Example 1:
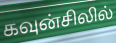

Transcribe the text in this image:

கவுன்சிலில்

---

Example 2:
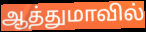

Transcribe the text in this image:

ஆத்துமாவில்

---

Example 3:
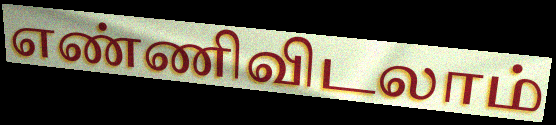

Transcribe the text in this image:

எண்ணிவிடலாம்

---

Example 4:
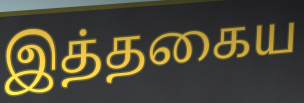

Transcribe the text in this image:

இத்தகைய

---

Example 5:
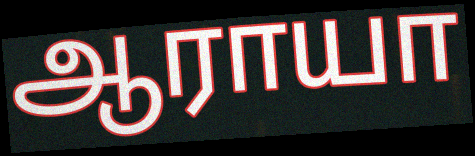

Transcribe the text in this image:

ஆராயா